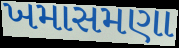
ખમાસમણા